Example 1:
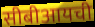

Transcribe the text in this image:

सीबीआयची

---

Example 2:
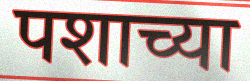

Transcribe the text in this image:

पशाच्या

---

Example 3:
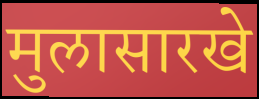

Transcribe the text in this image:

मुलासारखे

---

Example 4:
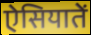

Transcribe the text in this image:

ऐसियातें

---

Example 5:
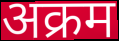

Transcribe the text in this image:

अक्रम